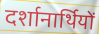
दर्शानार्थियों